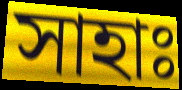
সাহাঃ